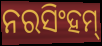
ନରସିଂହମ୍